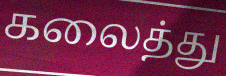
கலைத்து